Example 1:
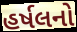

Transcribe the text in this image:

હર્ષલનો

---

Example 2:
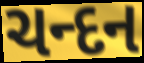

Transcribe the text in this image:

ચન્દન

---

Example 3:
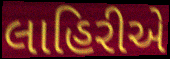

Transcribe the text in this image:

લાહિરીએ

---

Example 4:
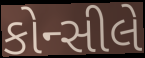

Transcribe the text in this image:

કોન્સીલે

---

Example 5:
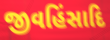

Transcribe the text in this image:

જીવહિંસાદિ